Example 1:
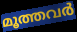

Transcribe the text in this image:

മൂത്തവർ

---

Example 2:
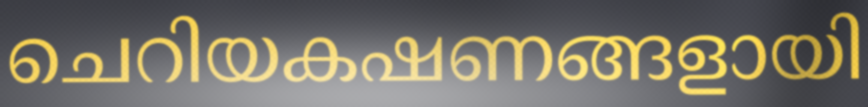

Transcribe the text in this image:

ചെറിയകഷണങ്ങളായി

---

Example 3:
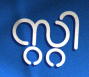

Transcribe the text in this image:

സ്റ്റി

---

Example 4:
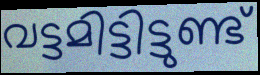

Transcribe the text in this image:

വട്ടമിട്ടിട്ടുണ്ട്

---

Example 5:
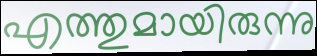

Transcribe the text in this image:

എത്തുമായിരുന്നു